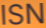
ISN